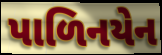
પાળિનયેન